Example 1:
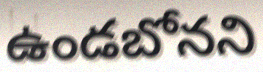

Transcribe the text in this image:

ఉండబోనని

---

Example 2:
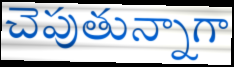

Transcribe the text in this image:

చెపుతున్నాగా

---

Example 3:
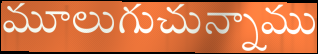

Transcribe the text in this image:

మూలుగుచున్నాము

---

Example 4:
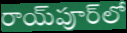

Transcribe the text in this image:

రాయ్‌పూర్‌లో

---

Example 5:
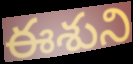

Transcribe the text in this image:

ఈశుని